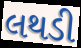
લથડી